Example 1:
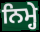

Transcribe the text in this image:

ਨਿਮ੍ਹੇ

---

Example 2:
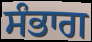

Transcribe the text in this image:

ਸੰਭਾਗ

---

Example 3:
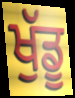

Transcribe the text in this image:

ਖੁੱਡੂ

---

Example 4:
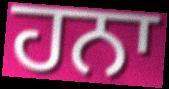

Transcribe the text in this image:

ਹਨਾ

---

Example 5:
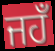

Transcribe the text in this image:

ਜਹਁ